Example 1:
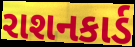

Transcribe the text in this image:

રાશનકાર્ડ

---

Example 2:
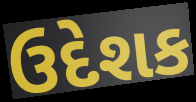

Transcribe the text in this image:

ઉદેશક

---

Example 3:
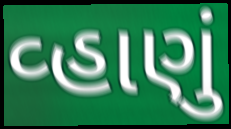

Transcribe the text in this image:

વ્હાણું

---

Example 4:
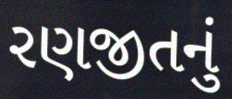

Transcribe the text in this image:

રણજીતનું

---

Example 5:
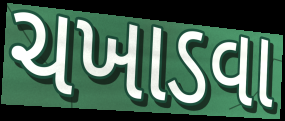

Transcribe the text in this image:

ચખાડવા